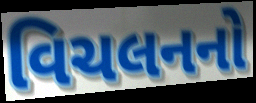
વિચલનનો